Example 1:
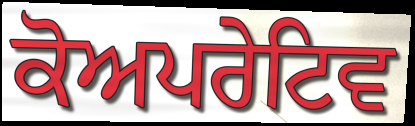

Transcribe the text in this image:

ਕੋਅਪਰੇਟਿਵ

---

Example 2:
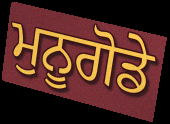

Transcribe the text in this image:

ਮੁਨੂਗੋਡੇ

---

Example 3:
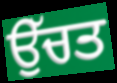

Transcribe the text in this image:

ਉੱਚਤ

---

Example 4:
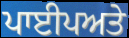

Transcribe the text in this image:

ਪਾਈਪਅਤੇ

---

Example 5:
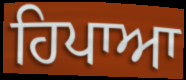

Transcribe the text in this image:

ਹਿਪਾਆ